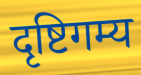
दृष्टिगम्य